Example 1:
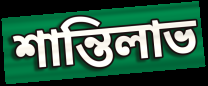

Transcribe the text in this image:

শান্তিলাভ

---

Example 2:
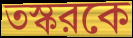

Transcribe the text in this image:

তস্করকে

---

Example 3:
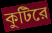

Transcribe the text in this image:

কুটিরে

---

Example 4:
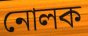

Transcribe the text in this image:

নোলক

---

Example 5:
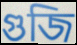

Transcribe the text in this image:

গুজি